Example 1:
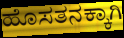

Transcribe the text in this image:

ಹೊಸತನಕ್ಕಾಗಿ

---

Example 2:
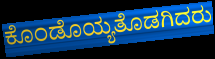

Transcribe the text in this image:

ಕೊಂಡೊಯ್ಯತೊಡಗಿದರು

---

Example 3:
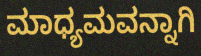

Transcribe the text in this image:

ಮಾಧ್ಯಮವನ್ನಾಗಿ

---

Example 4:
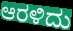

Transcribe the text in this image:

ಆರಳಿದು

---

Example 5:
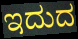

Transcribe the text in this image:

ಇದುದ